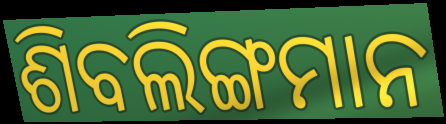
ଶିବଲିଙ୍ଗମାନ